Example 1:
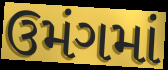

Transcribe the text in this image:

ઉમંગમાં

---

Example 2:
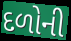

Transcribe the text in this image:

દળોની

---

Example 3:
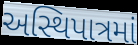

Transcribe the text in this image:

અસ્થિપાત્રમાં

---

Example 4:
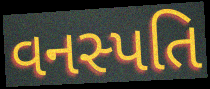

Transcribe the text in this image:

વનસ્પતિ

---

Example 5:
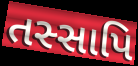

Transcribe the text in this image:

તસ્સાપિ